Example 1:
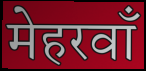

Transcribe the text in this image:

मेहरवाँ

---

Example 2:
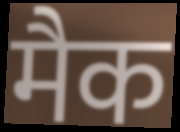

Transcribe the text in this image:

मैक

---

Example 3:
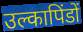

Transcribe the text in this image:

उल्कापिंडों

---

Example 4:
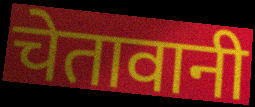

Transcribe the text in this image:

चेतावानी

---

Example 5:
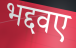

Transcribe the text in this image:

भद्दवए